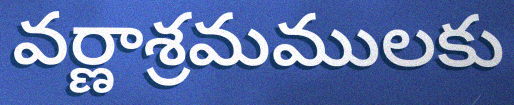
వర్ణాశ్రమములకు